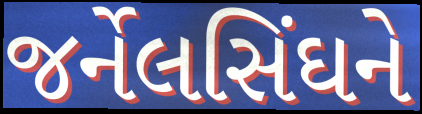
જર્નેલસિંઘને